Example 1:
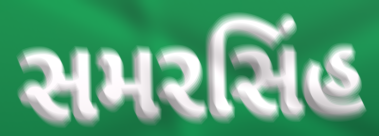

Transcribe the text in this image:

સમરસિંહ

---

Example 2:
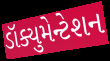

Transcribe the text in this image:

ડૉક્યુમેન્ટેશન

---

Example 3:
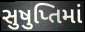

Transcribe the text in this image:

સુષુપ્તિમાં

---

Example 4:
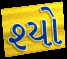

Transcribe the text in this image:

શ્યો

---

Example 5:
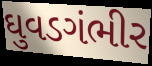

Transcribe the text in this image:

ઘુવડગંભીર